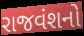
રાજવંશનો